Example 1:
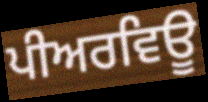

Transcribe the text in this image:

ਪੀਅਰਵਿਊ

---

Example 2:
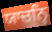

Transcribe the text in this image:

ਯਾਚਨ੍ਤਿ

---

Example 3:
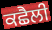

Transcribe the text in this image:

ਕਛੈਲੀ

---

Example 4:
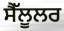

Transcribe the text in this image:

ਸੈੱਲੂਲਰ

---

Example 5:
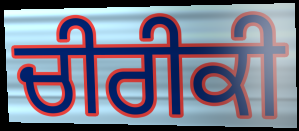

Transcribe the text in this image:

ਚੀਰੀਕੀ